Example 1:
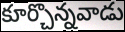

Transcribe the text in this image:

కూర్చొన్నవాడు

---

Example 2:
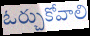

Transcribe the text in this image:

ఓర్చుకోవాలి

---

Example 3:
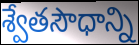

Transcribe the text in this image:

శ్వేతసౌధాన్ని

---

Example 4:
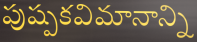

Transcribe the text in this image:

పుష్పకవిమానాన్ని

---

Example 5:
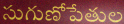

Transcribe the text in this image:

సుగుణోపేతుల